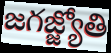
జగజ్జ్యోతి